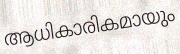
ആധികാരികമായും